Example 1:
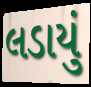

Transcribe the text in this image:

લડાયું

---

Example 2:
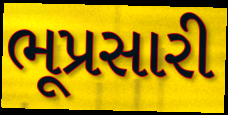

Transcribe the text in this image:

ભૂપ્રસારી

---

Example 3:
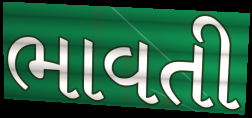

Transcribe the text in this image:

ભાવતી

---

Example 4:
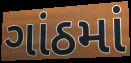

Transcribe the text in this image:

ગાંઠમાં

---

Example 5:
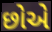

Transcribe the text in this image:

છોએ